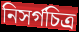
নিসর্গচিত্র